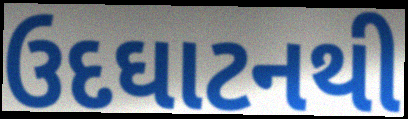
ઉદઘાટનથી